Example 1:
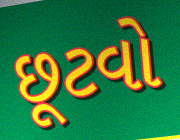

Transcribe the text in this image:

છૂટવો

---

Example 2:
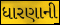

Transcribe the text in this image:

ધારણાની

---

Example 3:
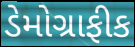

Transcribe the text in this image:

ડેમોગ્રાફીક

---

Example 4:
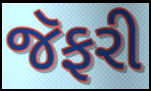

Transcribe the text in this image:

જૅફરી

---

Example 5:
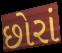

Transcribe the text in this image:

છોરાં